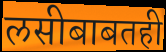
लसीबाबतही